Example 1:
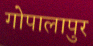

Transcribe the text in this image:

गोपालापुर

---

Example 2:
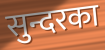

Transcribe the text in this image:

सुन्दरका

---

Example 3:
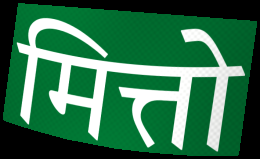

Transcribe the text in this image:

मित्तो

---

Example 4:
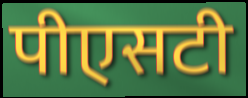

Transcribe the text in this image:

पीएसटी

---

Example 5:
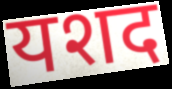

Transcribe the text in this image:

यशद